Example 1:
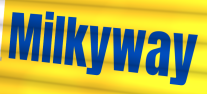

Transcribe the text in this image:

Milkyway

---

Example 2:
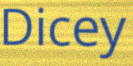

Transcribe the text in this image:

Dicey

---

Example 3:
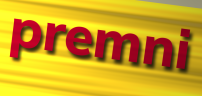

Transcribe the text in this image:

premni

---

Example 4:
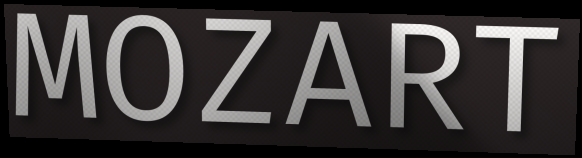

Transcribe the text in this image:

MOZART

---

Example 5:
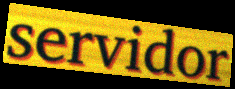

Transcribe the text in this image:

servidor